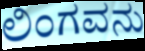
ಲಿಂಗವನು